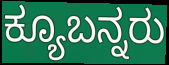
ಕ್ಯೂಬನ್ನರು